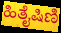
ಹಿತೈಷಿಣಿ